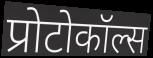
प्रोटोकॉल्स